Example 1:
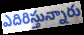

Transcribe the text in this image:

ఎదిరిస్తున్నారు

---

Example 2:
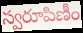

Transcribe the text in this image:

స్వరూపిణీం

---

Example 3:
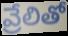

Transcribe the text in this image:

వ్రేలితో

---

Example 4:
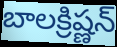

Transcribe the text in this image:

బాలక్రిష్ణన్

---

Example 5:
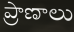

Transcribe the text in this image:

ప్రాణాలు